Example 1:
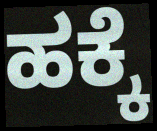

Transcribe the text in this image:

ಹಕ್ಕೆ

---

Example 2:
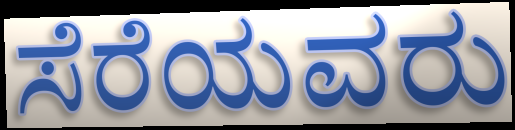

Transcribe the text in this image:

ಸೆರೆಯವರು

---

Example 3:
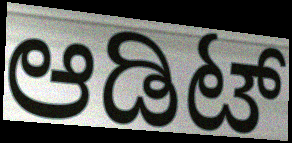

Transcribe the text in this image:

ಆಡಿಟ್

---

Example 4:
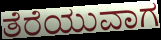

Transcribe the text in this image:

ತೆರೆಯುವಾಗ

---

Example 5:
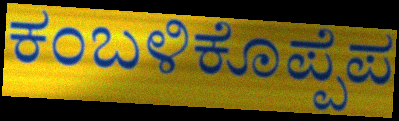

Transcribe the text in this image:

ಕಂಬಳಿಕೊಪ್ಪೆಪ